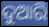
ଦୁଆରି